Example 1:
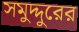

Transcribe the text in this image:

সমুদ্দুরের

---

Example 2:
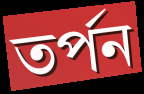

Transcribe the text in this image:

তর্পন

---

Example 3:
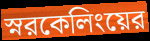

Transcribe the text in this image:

স্নরকেলিংয়ের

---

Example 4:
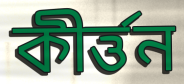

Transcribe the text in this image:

কীর্ত্তন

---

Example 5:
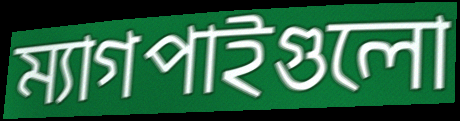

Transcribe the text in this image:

ম্যাগপাইগুলো